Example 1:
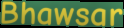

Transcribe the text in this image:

Bhawsar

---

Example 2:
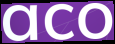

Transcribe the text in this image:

aco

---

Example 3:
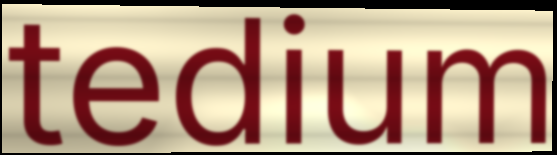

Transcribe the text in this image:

tedium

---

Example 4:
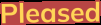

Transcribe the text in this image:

Pleased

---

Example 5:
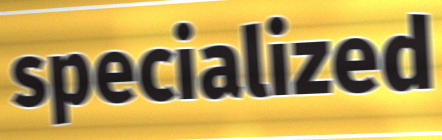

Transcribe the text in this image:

specialized